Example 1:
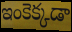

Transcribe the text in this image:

ఇంకెక్కడా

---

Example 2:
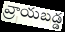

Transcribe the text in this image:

వ్రాయబడ్డ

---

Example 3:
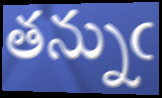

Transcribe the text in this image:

తన్నుఁ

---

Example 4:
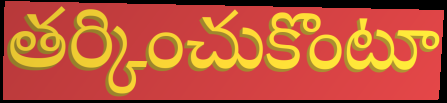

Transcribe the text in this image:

తర్కించుకొంటూ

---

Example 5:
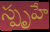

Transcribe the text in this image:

స్పృహే